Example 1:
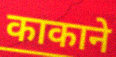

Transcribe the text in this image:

काकाने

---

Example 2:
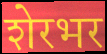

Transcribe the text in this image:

शेरभर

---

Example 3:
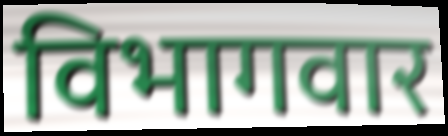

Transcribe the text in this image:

विभागवार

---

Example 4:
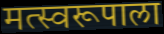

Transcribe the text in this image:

मत्स्वरूपाला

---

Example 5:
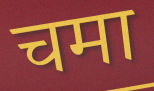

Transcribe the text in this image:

चमा